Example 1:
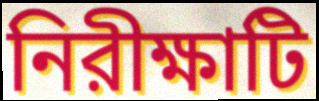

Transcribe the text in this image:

নিরীক্ষাটি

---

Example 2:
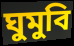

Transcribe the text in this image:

ঘুমুবি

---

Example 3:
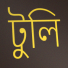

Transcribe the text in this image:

টুলি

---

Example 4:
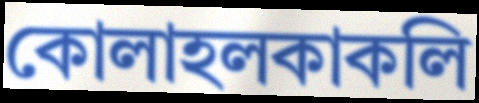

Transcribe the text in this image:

কোলাহলকাকলি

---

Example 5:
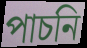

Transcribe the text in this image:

পাচনি